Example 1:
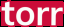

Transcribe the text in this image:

torr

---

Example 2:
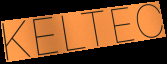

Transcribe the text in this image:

KELTEC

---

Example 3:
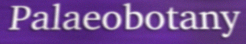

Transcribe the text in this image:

Palaeobotany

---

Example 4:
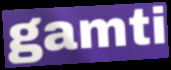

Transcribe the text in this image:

gamti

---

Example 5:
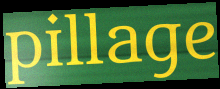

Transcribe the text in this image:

pillage